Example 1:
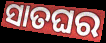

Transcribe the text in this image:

ସାତଘର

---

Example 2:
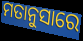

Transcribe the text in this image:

ମତାନୁସାରେ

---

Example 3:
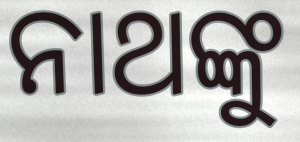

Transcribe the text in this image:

ନାଥଙ୍କୁ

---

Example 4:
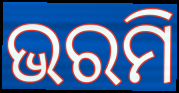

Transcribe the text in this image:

ଭରମି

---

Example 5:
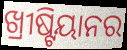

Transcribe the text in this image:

ଖ୍ରୀଷ୍ଟିୟାନର